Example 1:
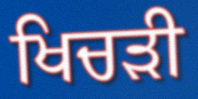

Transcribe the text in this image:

ਖਿਚੜੀ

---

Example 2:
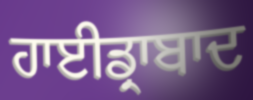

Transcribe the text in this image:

ਹਾਈਡ੍ਰਾਬਾਦ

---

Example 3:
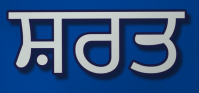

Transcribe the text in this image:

ਸ਼ਰਤ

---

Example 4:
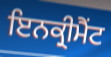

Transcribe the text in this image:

ਇਨਕ੍ਰੀਮੈਂਟ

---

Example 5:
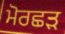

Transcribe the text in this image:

ਮੋਰਛੜ